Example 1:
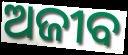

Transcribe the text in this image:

ଅଜୀବ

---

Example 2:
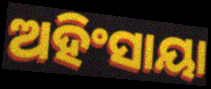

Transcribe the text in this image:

ଅହିଂସାୟା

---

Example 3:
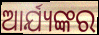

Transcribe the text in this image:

ଆର୍ଯ୍ୟଙ୍କର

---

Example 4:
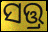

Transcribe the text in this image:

ସତ୍ତ୍ର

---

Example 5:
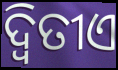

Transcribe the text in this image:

ଦ୍ୱିତୀଏ